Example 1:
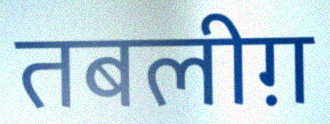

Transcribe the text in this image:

तबलीग़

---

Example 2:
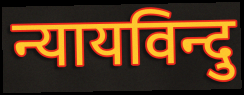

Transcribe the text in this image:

न्यायविन्दु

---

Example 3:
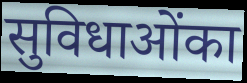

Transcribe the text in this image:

सुविधाओंका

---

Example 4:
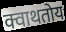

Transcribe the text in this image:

क्वाथतोय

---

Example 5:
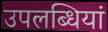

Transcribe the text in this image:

उपलब्धियां